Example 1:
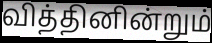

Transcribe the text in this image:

வித்தினின்றும்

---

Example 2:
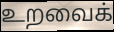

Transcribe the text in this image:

உறவைக்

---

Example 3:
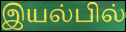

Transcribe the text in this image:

இயல்பில்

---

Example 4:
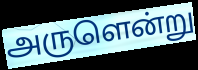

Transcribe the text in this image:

அருளென்று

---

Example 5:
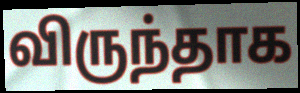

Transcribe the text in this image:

விருந்தாக